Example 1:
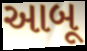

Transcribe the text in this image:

આબૂ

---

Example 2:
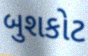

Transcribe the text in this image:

બુશકોટ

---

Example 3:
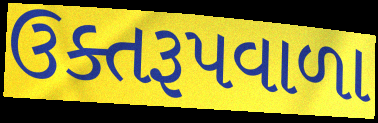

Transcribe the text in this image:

ઉક્તરૂપવાળા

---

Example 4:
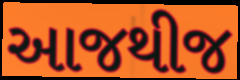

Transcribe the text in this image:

આજથીજ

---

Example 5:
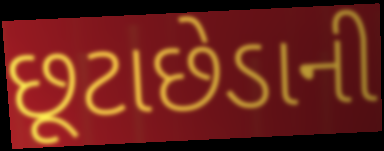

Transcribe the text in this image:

છૂટાછેડાની